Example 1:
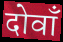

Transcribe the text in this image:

दोवाँ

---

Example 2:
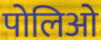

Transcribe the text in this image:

पोलिओ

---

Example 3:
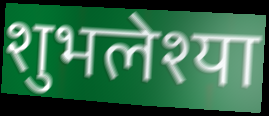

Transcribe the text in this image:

शुभलेश्या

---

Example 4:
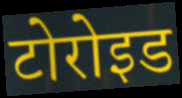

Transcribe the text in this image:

टोरोइड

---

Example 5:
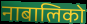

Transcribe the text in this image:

नाबालिको